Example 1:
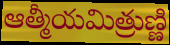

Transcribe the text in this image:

ఆత్మీయమిత్రుణ్ణి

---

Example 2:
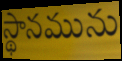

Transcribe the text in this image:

స్థానమును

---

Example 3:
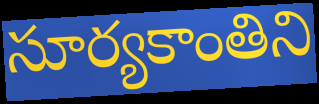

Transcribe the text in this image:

సూర్యకాంతిని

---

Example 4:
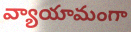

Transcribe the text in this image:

వ్యాయామంగా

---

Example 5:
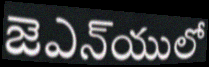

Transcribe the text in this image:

జెఎన్‌యులో